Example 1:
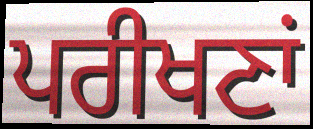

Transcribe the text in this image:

ਪਰੀਖਣਾਂ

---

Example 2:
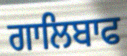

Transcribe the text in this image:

ਗਾਲਿਬਾਫ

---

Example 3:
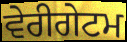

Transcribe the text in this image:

ਵੇਰੀਗੇਟਮ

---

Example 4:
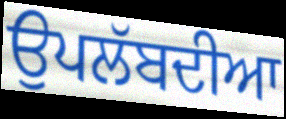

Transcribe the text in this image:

ਉਪਲੱਬਦੀਆ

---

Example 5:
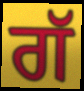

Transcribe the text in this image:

ਗੱ